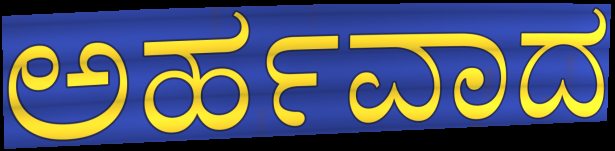
ಅರ್ಹವಾದ